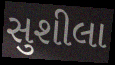
સુશીલા